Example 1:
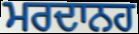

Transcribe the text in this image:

ਮਰਦਾਨਹ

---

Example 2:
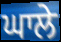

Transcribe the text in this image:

ਘਾਲੇ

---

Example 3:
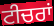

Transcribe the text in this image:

ਟੀਚਰਾਂ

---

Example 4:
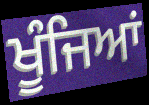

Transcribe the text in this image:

ਖੂੰਜਿਆਂ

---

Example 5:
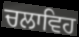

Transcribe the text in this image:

ਚਲਾਵਿਹ